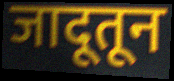
जादूतून